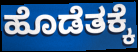
ಹೊಡೆತಕ್ಕೆ